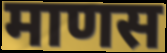
माणस